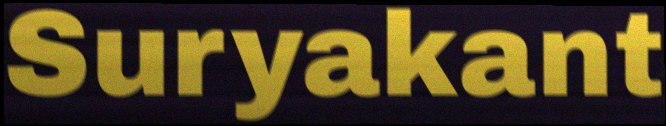
Suryakant